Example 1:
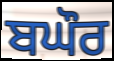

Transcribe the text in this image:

ਬਘੌਰ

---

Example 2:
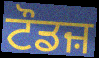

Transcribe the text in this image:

ਟੌਡਜ਼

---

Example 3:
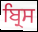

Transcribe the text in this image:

ਬ੍ਰਿਸ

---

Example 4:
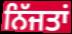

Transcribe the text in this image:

ਨਿੱਜਤਾਂ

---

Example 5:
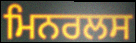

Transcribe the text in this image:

ਮਿਨਰਲਸ